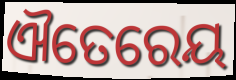
ଐତେରେୟ